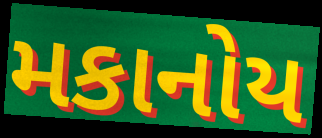
મકાનોય